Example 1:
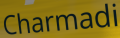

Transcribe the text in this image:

Charmadi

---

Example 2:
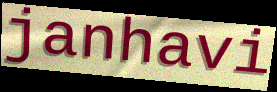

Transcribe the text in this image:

janhavi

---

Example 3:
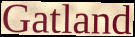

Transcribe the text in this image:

Gatland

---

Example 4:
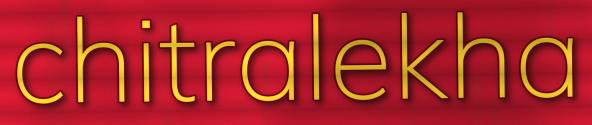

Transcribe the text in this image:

chitralekha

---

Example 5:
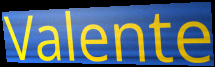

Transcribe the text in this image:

Valente